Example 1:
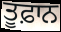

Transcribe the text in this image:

ਤੂਫ਼ਾਨ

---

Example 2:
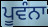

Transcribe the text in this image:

ਪੂਵੰਨਾ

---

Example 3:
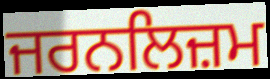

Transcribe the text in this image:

ਜਰਨਲਿਜ਼ਮ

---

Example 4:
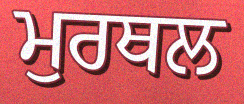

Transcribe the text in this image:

ਮੁਰਥਲ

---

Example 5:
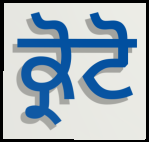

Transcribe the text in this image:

ਕ੍ਰੋਟੋ